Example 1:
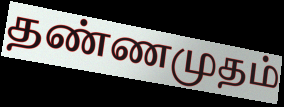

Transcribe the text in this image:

தண்ணமுதம்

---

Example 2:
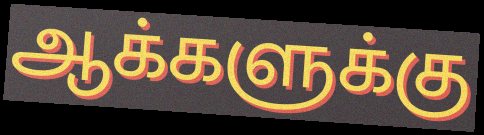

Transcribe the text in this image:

ஆக்களுக்கு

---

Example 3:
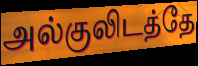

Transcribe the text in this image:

அல்குலிடத்தே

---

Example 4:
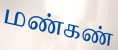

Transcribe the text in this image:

மண்கண்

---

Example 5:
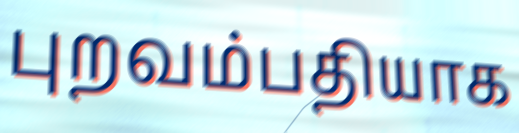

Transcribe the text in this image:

புறவம்பதியாக